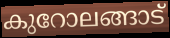
കുറോലങ്ങാട്